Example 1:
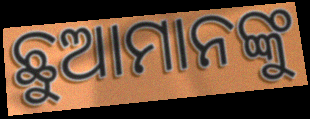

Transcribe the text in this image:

ଛୁଆମାନଙ୍କୁ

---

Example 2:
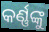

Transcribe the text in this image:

କର୍ଣ୍ଣଙ୍କୁ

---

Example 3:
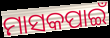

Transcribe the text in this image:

ମାସକପାଇଁ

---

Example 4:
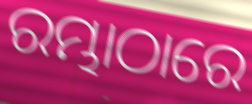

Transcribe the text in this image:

ରମ୍ଭାଠାରେ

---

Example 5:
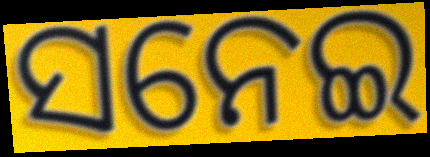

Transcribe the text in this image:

ସନେଇ